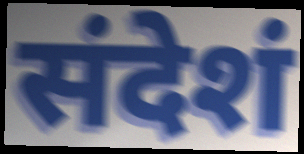
संदेशं